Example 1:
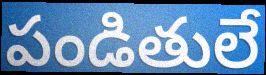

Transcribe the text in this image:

పండితులే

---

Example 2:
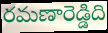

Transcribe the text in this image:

రమణారెడ్డిది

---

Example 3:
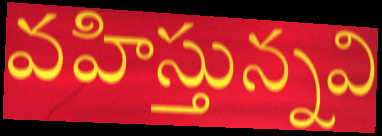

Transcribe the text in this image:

వహిస్తున్నవి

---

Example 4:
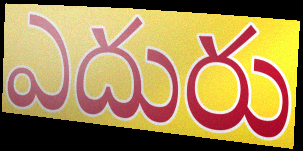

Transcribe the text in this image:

ఎదురు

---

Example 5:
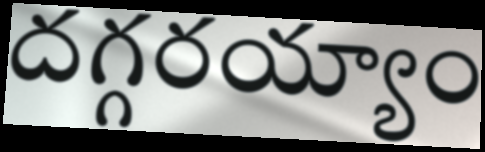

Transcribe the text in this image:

దగ్గరయ్యాం